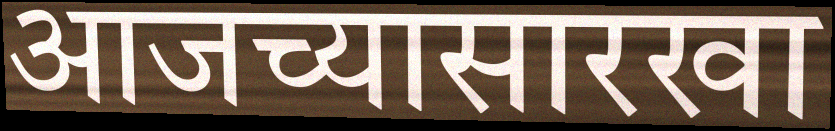
आजच्यासारखा